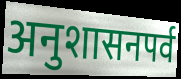
अनुशासनपर्व